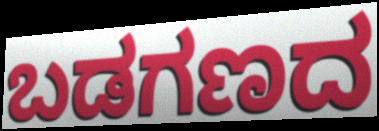
ಬಡಗಣದ